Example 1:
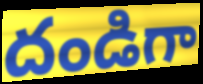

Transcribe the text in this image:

దండిగా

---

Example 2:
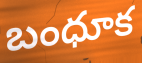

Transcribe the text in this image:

బంధూక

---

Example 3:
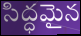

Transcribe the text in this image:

సిద్ధమైన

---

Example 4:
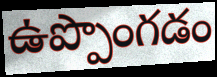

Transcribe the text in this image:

ఉప్పొంగడం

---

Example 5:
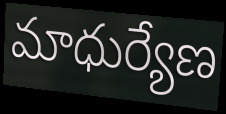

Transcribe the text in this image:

మాధుర్యేణ